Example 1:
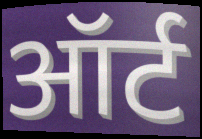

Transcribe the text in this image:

ऑर्ट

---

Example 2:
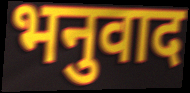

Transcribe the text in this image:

भनुवाद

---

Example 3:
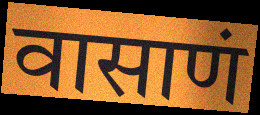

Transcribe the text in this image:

वासाणं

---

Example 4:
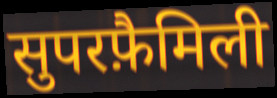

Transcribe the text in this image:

सुपरफ़ैमिली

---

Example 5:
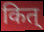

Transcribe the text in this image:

कित्